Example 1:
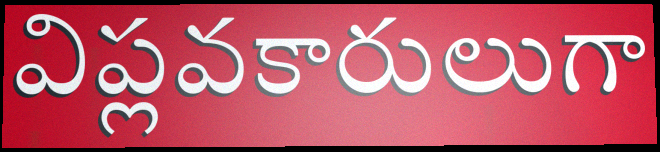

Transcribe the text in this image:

విప్లవకారులుగా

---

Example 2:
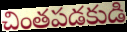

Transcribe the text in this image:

చింతపడకుడి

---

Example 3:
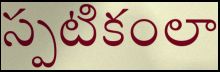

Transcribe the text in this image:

స్పటికంలా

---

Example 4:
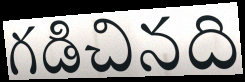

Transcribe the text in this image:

గడిచినది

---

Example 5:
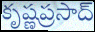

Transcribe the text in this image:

కృష్ణప్రసాద్